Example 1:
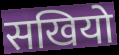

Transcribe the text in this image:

सखियो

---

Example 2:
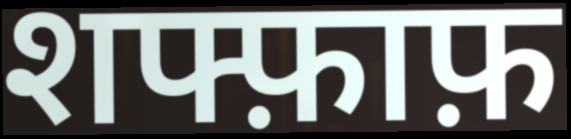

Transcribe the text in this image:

शफ्फ़ाफ़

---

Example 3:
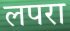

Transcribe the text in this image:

लपरा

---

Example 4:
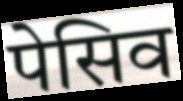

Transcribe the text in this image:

पेसिव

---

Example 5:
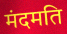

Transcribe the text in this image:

मंदमति